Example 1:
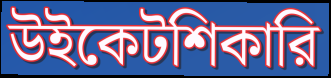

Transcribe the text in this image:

উইকেটশিকারি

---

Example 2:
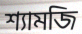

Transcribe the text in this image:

শ্যামজি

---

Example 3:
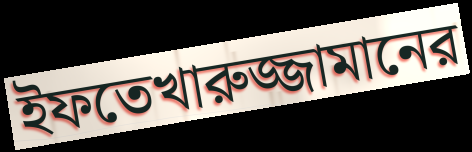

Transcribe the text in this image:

ইফতেখারুজ্জামানের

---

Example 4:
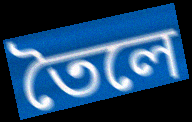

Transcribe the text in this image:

তৈলে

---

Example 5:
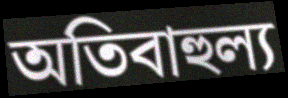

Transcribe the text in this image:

অতিবাহুল্য